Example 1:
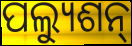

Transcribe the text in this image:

ପଲ୍ୟୁଶନ୍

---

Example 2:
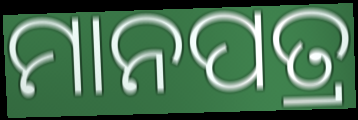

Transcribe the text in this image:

ମାନପତ୍ର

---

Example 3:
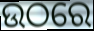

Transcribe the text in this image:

ଉଠରେ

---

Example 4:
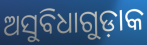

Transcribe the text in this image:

ଅସୁବିଧାଗୁଡ଼ାକ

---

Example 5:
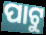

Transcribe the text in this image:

ପାଟୁ